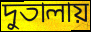
দুতালায়